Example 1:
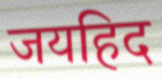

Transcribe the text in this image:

जयहिद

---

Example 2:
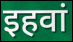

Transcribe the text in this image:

इहवां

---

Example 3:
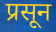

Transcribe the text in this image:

प्रसून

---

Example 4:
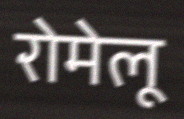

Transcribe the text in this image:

रोमेलू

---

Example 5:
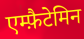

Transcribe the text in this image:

एम्फ़ैटेमिन